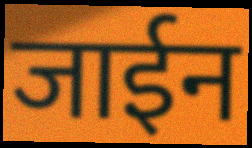
जाईन